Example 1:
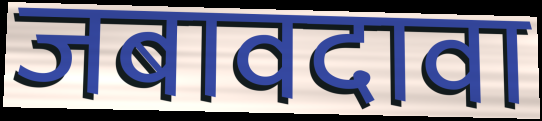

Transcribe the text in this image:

जबावदावा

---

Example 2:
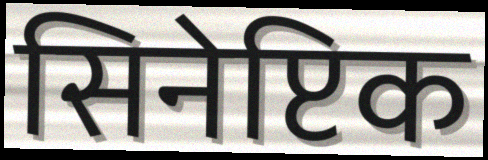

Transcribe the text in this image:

सिनेप्टिक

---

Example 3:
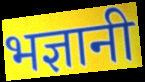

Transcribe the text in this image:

भज्ञानी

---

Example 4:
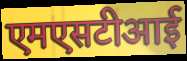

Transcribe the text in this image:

एमएसटीआई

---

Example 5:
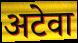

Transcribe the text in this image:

अटेवा